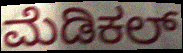
ಮೆಡಿಕಲ್